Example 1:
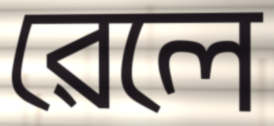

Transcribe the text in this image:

ৱেলে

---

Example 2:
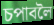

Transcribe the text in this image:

চপাবলৈ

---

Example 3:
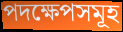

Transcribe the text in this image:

পদক্ষেপসমূহ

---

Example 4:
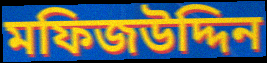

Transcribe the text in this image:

মফিজউদ্দিন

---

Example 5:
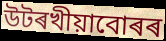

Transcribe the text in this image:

উটৰখীয়াবোৰৰ